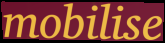
mobilise